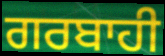
ਗਰਬਾਹੀ